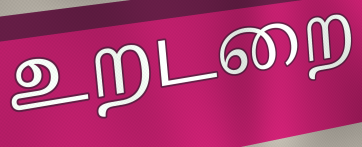
உறடறை